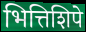
भित्तिशिपे